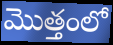
మొత్తంలో